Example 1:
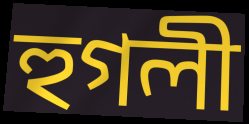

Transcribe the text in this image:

হুগলী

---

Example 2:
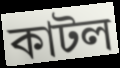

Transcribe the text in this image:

কাটল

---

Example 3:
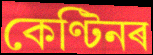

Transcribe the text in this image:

কেণ্টিনৰ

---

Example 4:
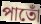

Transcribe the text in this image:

পাতোঁ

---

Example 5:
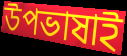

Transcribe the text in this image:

উপভাষাই